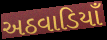
અઠવાડિયાઁ